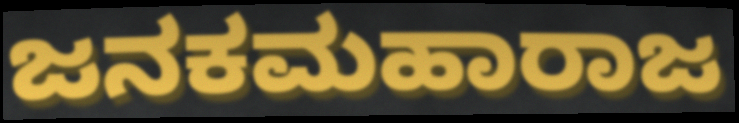
ಜನಕಮಹಾರಾಜ